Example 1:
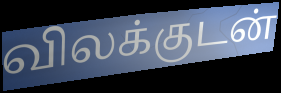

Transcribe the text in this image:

விலக்குடன்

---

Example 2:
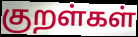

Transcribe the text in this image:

குறள்கள்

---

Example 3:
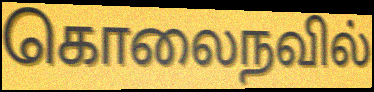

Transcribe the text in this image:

கொலைநவில்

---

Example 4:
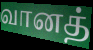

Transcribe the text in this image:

வானத்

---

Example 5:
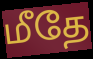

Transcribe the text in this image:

மீதே